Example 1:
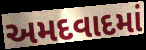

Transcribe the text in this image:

અમદવાદમાં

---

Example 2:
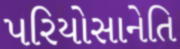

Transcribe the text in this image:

પરિયોસાનેતિ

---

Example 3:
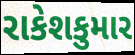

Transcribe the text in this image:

રાકેશકુમાર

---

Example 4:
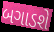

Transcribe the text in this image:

બગાડશે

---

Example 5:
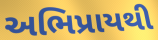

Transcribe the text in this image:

અભિપ્રાયથી